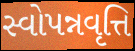
સ્વોપન્નવૃત્તિ